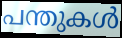
പന്തുകൾ